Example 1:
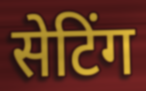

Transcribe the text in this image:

सेटिंग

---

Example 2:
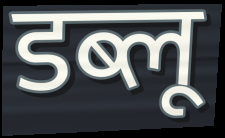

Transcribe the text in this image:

डब्लू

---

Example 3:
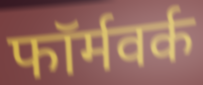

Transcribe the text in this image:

फॉर्मवर्क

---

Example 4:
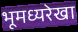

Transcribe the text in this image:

भूमध्यरेखा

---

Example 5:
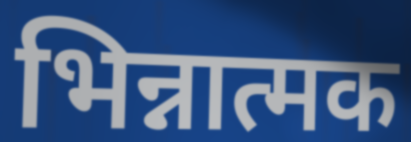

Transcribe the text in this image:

भिन्नात्मक